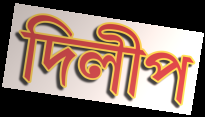
দিলীপ